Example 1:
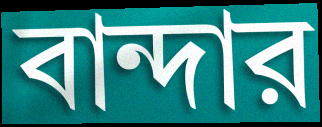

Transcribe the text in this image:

বান্দার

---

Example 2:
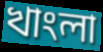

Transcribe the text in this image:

খাংলা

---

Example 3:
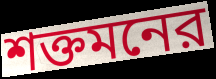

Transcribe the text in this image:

শক্তমনের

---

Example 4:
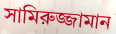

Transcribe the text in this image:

সামিরুজ্জামান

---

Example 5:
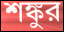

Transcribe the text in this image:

শঙ্কুর